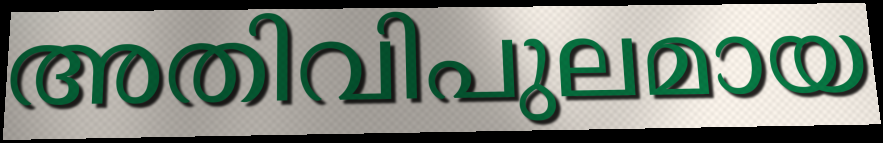
അതിവിപുലമായ